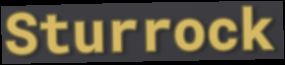
Sturrock